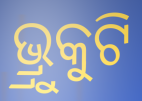
ଭ୍ର୍ରୁକୁଟି